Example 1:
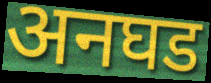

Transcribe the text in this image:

अनघड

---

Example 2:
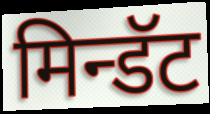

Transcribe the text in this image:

मिन्डॅट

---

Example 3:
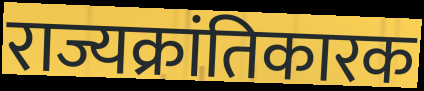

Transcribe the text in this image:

राज्यक्रांतिकारक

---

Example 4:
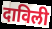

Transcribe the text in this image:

दाविली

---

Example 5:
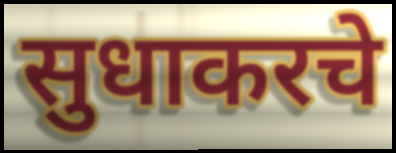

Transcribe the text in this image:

सुधाकरचे